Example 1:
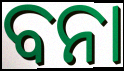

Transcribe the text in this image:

ବନା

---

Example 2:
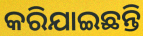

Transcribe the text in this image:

କରିଯାଇଛନ୍ତି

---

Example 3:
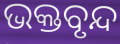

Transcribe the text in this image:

ଭକ୍ତବୃନ୍ଦ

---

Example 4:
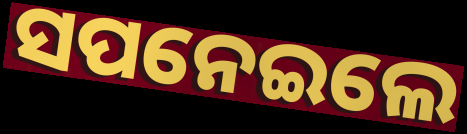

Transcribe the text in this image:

ସପନେଇଲେ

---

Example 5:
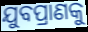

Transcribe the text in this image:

ଯୁବପ୍ରାଣକୁ